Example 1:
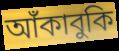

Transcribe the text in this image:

আঁকাবুকি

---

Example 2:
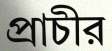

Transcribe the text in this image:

প্রাচীর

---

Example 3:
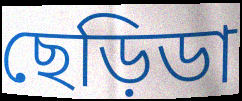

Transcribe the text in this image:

ছেড়িডা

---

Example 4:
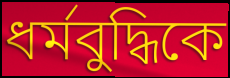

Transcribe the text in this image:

ধর্মবুদ্ধিকে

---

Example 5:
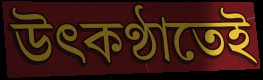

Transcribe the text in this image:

উৎকণ্ঠাতেই